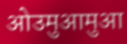
ओउमुआमुआ